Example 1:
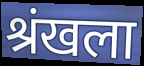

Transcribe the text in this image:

श्रंखला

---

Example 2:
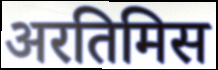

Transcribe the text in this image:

अरतिमिस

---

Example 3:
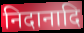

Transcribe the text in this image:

निदानादि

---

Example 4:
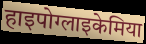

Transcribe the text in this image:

हाइपोग्लाइकेमिया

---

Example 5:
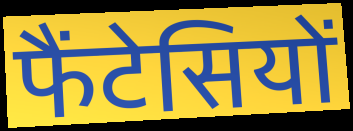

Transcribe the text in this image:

फैंटेसियों